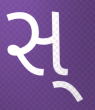
સ્